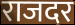
राजदर